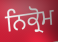
ਨਿਕ੍ਰੋਮ